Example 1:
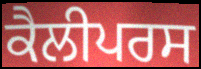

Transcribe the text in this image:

ਕੈਲੀਪਰਸ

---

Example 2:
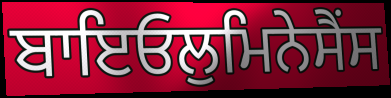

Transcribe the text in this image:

ਬਾਇਓਲੁਮਿਨੇਸੈਂਸ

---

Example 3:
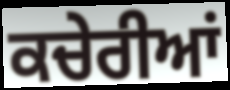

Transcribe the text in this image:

ਕਚੇਰੀਆਂ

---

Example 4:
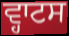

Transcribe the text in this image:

ਵ੍ਹਾਟਸ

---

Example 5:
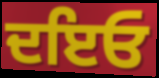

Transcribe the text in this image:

ਦਇਓ